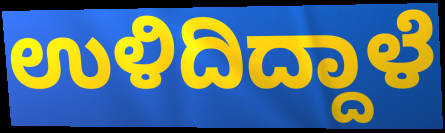
ಉಳಿದಿದ್ದಾಳೆ